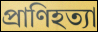
প্রাণিহত্যা